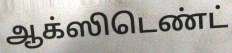
ஆக்ஸிடெண்ட்